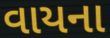
વાયના